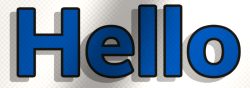
Hello